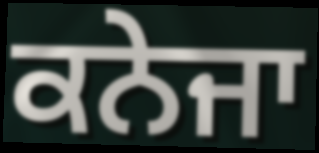
ਕਨੇਜਾ